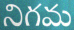
నిగమ